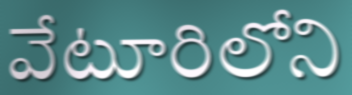
వేటూరిలోని